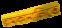
রামকানালিতে